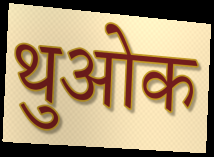
थुओक